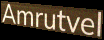
Amrutvel